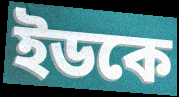
ইডকে